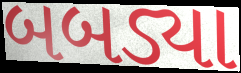
બબડ્યા